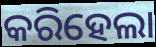
କରିହେଲା